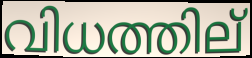
വിധത്തില്